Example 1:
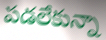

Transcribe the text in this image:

పడలేకున్నా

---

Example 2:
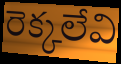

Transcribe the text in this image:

రెక్కలేవి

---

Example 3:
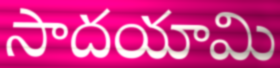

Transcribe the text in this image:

సాదయామి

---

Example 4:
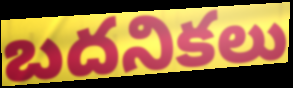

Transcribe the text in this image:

బదనికలు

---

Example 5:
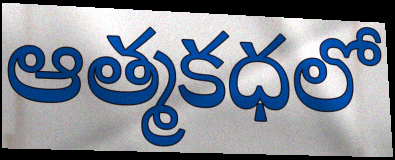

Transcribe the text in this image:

ఆత్మకధలో